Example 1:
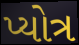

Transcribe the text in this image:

પ્યોત્ર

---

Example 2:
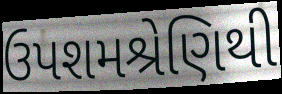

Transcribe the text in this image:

ઉપશમશ્રેણિથી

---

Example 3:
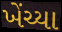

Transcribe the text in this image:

ખેંચ્યા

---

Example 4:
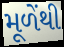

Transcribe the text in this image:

મૂળેંથી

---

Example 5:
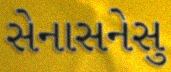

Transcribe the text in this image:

સેનાસનેસુ